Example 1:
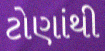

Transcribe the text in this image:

ટોણાંથી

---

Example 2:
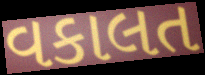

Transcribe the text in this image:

વકાલત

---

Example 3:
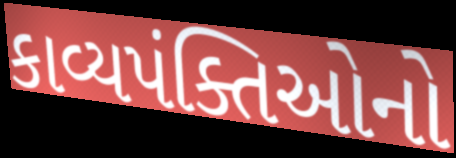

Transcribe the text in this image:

કાવ્યપંક્તિઓનો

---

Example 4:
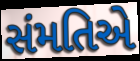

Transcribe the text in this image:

સંમતિએ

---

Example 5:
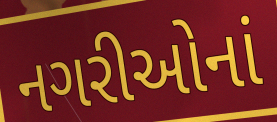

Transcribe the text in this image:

નગરીઓનાં